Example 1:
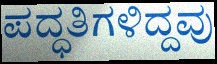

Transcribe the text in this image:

ಪದ್ಧತಿಗಳಿದ್ದವು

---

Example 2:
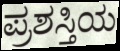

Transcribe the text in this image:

ಪ್ರಶಸ್ತಿಯ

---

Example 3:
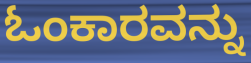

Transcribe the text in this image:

ಓಂಕಾರವನ್ನು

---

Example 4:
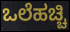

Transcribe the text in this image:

ಒಲೆಹಚ್ಚಿ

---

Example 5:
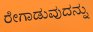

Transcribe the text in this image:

ರೇಗಾಡುವುದನ್ನು